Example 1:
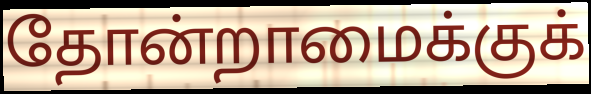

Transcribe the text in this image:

தோன்றாமைக்குக்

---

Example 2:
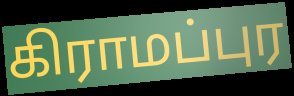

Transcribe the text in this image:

கிராமப்புர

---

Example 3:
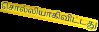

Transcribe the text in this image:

சொல்லியாகிவிட்டது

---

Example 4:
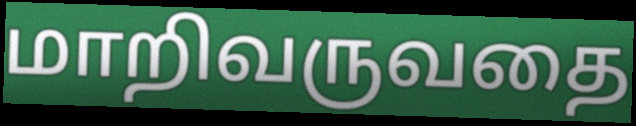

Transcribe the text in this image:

மாறிவருவதை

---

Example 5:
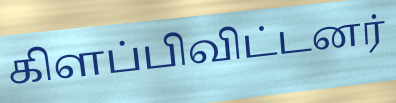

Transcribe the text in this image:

கிளப்பிவிட்டனர்